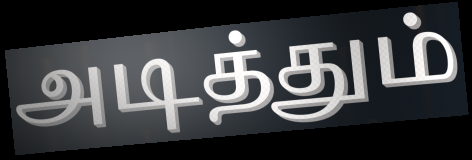
அடித்தும்